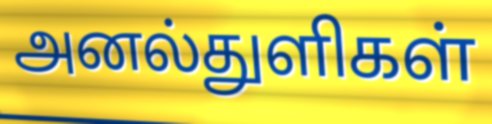
அனல்துளிகள்